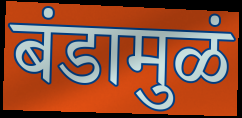
बंडामुळं